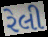
રેલી